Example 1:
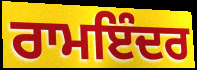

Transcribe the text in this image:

ਰਾਮਇੰਦਰ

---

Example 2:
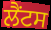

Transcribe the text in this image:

ਲੈਂਟਸ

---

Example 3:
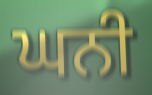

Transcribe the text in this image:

ਘਨੀ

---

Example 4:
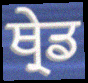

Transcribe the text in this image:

ਥ੍ਰੇਡ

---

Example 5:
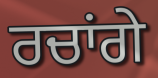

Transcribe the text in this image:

ਰਚਾਂਗੇ